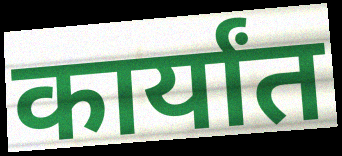
कार्यांत